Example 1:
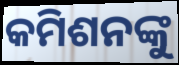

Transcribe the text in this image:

କମିଶନଙ୍କୁ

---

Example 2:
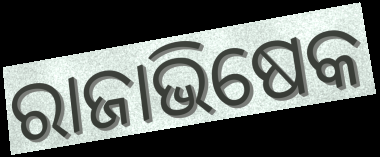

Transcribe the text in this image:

ରାଜାଭିଷେକ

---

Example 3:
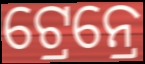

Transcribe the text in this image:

ଟ୍ରେନ୍ରେ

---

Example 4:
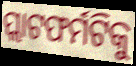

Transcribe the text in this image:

ପ୍ଲାଟଫର୍ମଟିକୁ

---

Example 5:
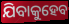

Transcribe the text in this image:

ଯିବାକୁହେବ